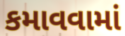
કમાવવામાં